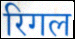
रिगल